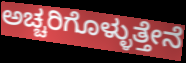
ಅಚ್ಚರಿಗೊಳ್ಳುತ್ತೇನೆ